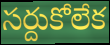
సర్దుకోలేక